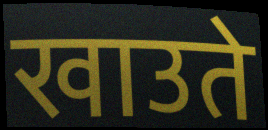
खाउते